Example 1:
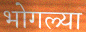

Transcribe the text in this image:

भोगल्या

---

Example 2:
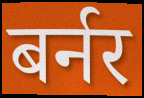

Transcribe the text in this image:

बर्नर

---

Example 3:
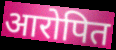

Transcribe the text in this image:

आरोपित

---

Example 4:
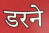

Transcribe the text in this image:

डरने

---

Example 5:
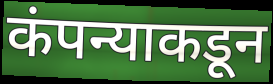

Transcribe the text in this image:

कंपन्याकडून